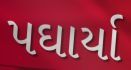
પઘાર્યા